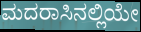
ಮದರಾಸಿನಲ್ಲಿಯೇ